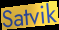
Satvik